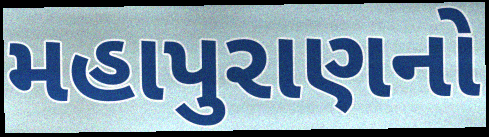
મહાપુરાણનો